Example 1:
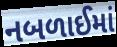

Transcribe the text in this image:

નબળાઈમાં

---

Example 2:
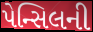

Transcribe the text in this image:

પેન્સિલની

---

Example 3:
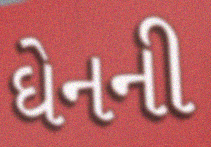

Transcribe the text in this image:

ઘેનની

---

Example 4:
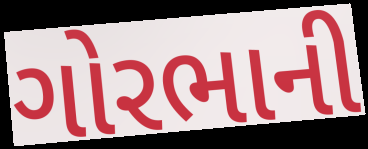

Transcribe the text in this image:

ગોરભાની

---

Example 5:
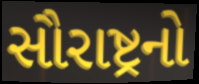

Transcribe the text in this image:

સૌરાષ્ટ્રનો